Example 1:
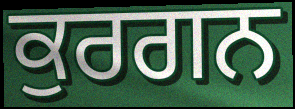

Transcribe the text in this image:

ਕੁਰਗਨ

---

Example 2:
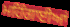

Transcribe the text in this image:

ਮਹਿੰਗਾਈਆਂ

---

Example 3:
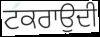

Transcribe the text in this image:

ਟਕਰਾਉਦੀ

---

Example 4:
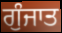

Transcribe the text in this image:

ਗੁੰਜਾਤ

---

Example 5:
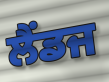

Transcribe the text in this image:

ਲੈਂਡਜ